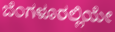
ಬೆಂಗಳೂರಲ್ಲಿಯೇ